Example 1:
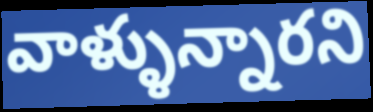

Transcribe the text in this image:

వాళ్ళున్నారని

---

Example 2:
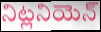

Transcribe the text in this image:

నిట్లనియెన్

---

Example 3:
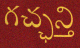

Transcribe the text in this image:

గచ్ఛన్తి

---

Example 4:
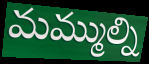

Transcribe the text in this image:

మమ్ముల్ని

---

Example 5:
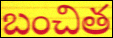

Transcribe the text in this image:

బంచిత